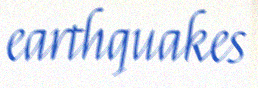
earthquakes